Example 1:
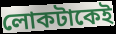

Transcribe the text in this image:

লোকটাকেই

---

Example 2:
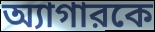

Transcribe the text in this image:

অ্যাগারকে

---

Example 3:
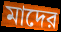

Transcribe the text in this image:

মাদের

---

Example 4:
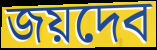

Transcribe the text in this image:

জয়দেব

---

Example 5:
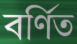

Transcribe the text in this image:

বর্ণিত